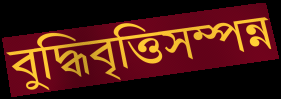
বুদ্ধিবৃত্তিসম্পন্ন